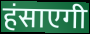
हंसाएगी